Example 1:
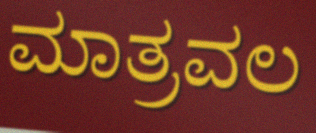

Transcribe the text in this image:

ಮಾತ್ರವಲ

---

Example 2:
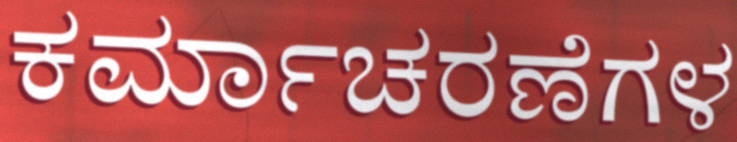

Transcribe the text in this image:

ಕರ್ಮಾಚರಣೆಗಳ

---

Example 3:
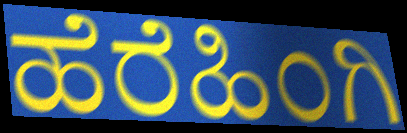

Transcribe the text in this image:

ಹೆರೆಹಿಂಗಿ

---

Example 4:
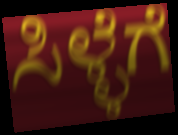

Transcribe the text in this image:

ಸಿಳ್ಳೆಗೆ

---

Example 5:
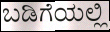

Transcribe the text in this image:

ಬಡಿಗೆಯಲ್ಲಿ